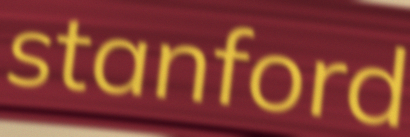
stanford